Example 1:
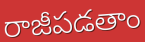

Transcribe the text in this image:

రాజీపడతాం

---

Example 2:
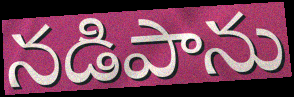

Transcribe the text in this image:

నడిపాను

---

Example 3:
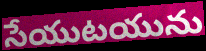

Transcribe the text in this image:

సేయుటయును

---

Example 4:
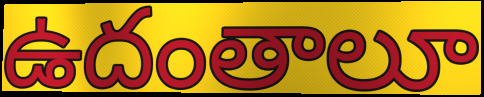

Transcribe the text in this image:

ఉదంతాలూ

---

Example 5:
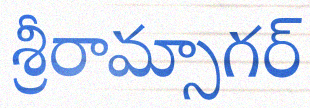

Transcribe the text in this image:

శ్రీరామ్సాగర్